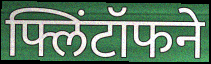
फ्लिंटॉफने